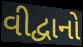
વીદ્વાનો